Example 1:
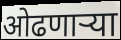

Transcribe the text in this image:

ओढणार्‍या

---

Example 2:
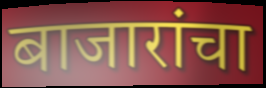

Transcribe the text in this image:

बाजारांचा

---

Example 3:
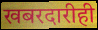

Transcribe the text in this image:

खबरदारीही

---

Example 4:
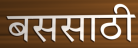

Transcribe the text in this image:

बससाठी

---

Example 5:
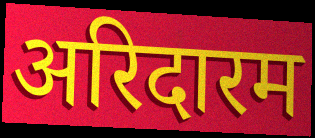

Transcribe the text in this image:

अरिदारम